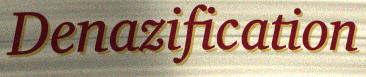
Denazification